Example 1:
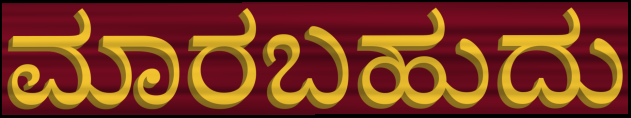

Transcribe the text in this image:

ಮಾರಬಹುದು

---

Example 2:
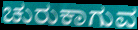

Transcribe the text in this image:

ಚುರುಕಾಗುವ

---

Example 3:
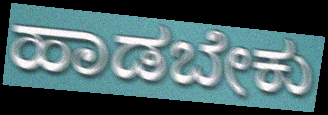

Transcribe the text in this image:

ಹಾಡಬೇಕು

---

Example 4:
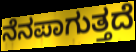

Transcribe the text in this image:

ನೆನಪಾಗುತ್ತದೆ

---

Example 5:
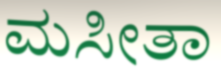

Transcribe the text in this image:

ಮಸೀತಾ